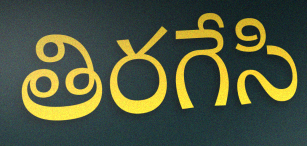
తిరగేసి